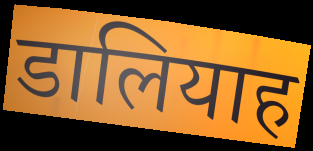
डालियाह